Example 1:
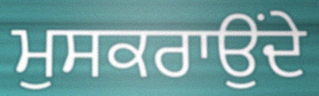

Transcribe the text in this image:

ਮੁਸਕਰਾਉਂਦੇ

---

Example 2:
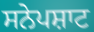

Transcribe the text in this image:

ਸਨੇਪਸ਼ਾਟ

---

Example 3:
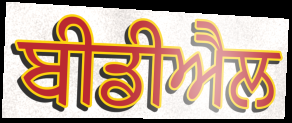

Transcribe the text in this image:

ਬੀਡੀਐਲ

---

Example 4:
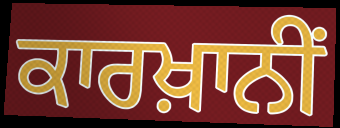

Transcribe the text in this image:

ਕਾਰਖ਼ਾਨੀਂ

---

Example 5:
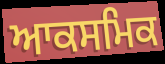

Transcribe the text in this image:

ਆਕਸਮਿਕ